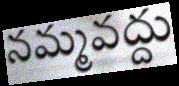
నమ్మవద్దు